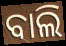
ବାଲି